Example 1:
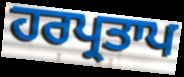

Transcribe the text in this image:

ਹਰਪ੍ਰਤਾਪ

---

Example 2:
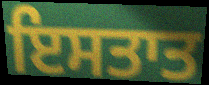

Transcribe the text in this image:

ਇਸਤਾਤ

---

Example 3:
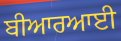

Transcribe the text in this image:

ਬੀਆਰਆਈ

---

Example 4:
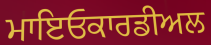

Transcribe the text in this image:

ਮਾਇਓਕਾਰਡੀਅਲ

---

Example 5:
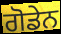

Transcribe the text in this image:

ਗੋਡੇਨ